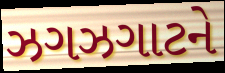
ઝગઝગાટને